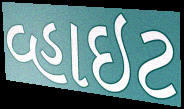
વ્હાઇટ